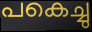
പകെച്ചു